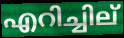
എറിച്ചില്